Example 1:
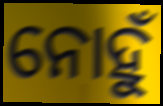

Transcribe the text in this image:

ନୋହୁଁ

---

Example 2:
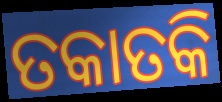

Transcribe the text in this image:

ତକାତକି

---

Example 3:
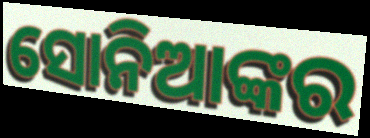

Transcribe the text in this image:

ସୋନିଆଙ୍କର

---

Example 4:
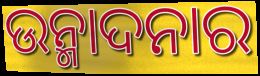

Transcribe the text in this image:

ଉନ୍ମାଦନାର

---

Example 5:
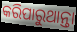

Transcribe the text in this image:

କରିପାରୁଥାନ୍ତା